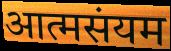
आत्मसंयम